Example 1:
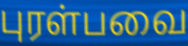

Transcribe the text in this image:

புரள்பவை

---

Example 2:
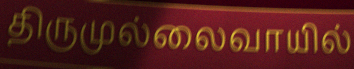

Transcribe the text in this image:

திருமுல்லைவாயில்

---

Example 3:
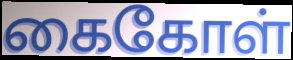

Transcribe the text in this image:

கைகோள்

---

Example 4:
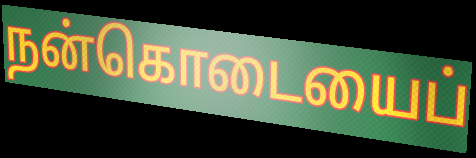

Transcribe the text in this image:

நன்கொடையைப்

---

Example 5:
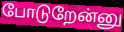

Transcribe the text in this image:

போடுறேன்னு